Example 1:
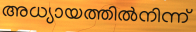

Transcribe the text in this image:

അധ്യായത്തിൽനിന്ന്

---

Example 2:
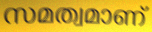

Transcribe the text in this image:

സമത്വമാണ്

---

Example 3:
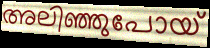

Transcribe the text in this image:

അലിഞ്ഞുപോയ്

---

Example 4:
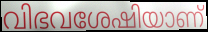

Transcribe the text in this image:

വിഭവശേഷിയാണ്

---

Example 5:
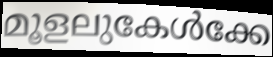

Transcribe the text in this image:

മൂളലുകേൾക്കേ